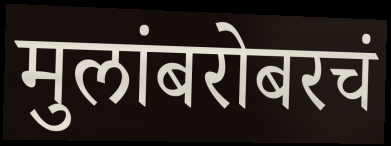
मुलांबरोबरचं